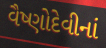
વૈષ્ણોદેવીનાં